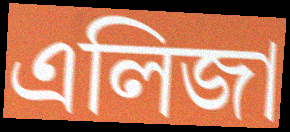
এলিজা